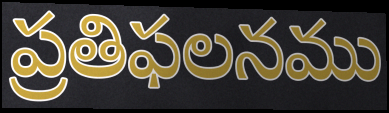
ప్రతిఫలనము